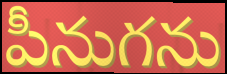
పీనుగను